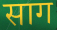
साग